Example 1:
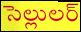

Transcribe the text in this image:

సెల్లులర్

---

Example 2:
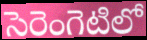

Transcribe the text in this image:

సెరెంగెటిలో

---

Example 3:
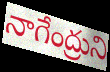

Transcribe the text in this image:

నాగేంద్రుని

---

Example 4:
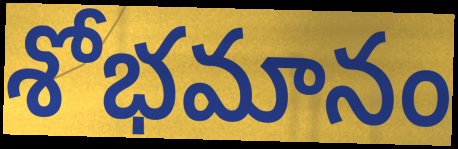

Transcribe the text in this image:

శోభమానం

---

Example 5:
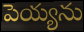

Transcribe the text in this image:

పెయ్యను